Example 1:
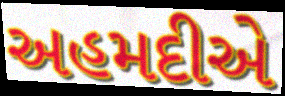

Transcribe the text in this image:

અહમદીએ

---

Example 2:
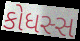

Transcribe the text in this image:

કોધસ્સ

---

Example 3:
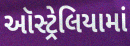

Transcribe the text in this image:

ઑસ્ટ્રેલિયામાં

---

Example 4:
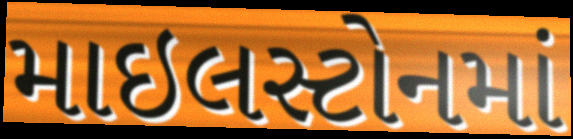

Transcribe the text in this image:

માઇલસ્ટોનમાં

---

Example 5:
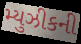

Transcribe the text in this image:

મ્યુઝીકની